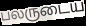
பலருடைய